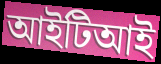
আইটিআই